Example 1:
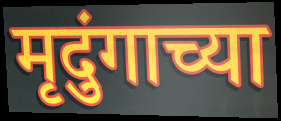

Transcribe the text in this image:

मृदुंगाच्या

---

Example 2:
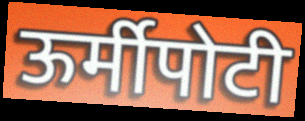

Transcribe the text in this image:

ऊर्मीपोटी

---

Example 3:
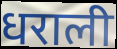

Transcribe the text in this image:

धराली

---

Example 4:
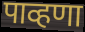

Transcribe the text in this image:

पाव्हणा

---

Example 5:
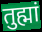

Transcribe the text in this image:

तुह्मां